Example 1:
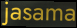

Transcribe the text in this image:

jasama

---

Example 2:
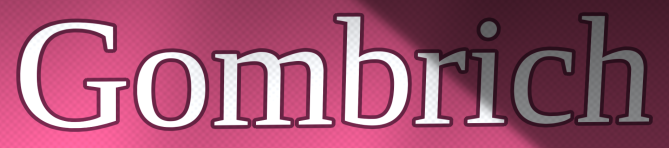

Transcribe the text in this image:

Gombrich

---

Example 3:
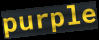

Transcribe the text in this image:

purple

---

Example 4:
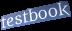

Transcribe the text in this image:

testbook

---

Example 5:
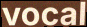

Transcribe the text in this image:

vocal